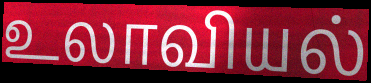
உலாவியல்